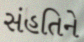
સંહતિને